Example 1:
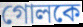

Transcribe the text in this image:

গোলকে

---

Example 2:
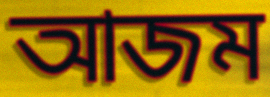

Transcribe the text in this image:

আজম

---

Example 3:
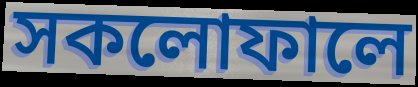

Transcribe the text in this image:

সকলোফালে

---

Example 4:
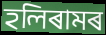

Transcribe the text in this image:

হলিৰামৰ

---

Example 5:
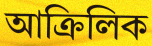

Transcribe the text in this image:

আক্ৰিলিক